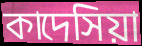
কাদেসিয়া